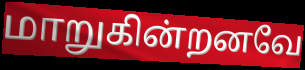
மாறுகின்றனவே